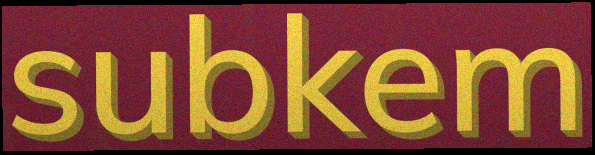
subkem